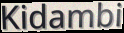
Kidambi